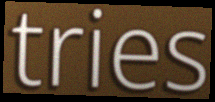
tries